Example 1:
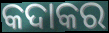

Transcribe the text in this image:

କଦାକର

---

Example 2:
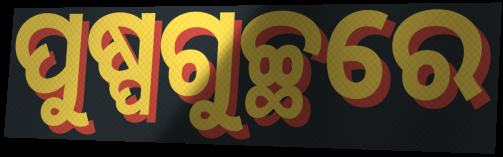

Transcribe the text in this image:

ପୁଷ୍ପଗୁଚ୍ଛରେ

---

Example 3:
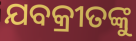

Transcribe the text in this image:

ଯବକ୍ରୀତଙ୍କୁ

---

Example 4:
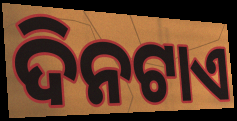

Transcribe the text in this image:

ଦିନଟାଏ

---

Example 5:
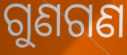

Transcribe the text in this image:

ଗୁଣଗଣ